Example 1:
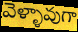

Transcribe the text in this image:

వెళ్ళావుగా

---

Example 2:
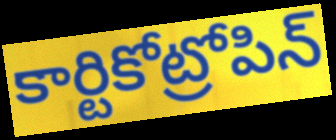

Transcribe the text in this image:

కార్టికోట్రోపిన్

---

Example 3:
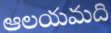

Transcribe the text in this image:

ఆలయమది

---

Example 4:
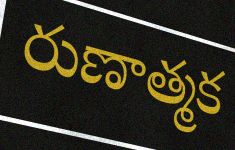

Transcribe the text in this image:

రుణాత్మక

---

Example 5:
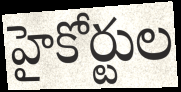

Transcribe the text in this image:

హైకోర్టుల